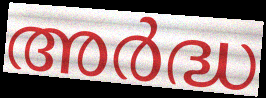
അർദ്ധ